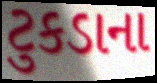
ટુકડાના